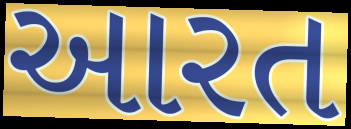
આરત